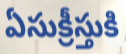
ఏసుక్రీస్తుకి